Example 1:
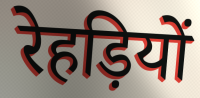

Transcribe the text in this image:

रेहड़ियों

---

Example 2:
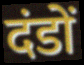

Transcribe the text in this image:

दंडों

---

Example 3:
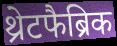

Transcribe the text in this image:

थ्रेटफैब्रिक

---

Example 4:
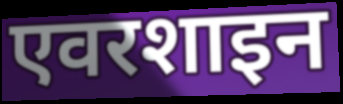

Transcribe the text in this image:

एवरशाइन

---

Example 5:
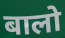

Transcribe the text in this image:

बालो